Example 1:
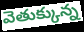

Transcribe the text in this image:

వెతుక్కున్న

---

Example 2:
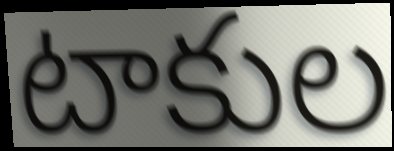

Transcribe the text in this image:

టాకుల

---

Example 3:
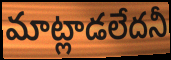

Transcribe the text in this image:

మాట్లాడలేదనీ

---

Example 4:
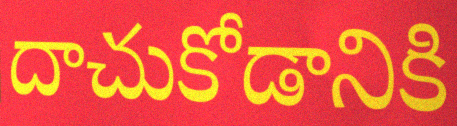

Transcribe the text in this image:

దాచుకోడానికి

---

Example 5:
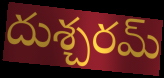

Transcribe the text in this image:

దుశ్చరమ్